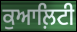
ਕੁਆਲ਼ਿਟੀ